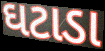
ઘટાડા